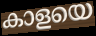
കാളയെ